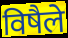
विषैले